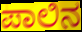
ಪಾಲಿನ